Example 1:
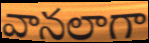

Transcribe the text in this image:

వానలాగా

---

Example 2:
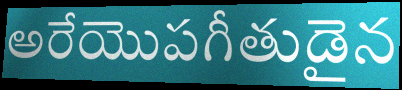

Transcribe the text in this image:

అరేయొపగీతుడైన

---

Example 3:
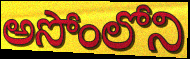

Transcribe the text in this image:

అసోంలోని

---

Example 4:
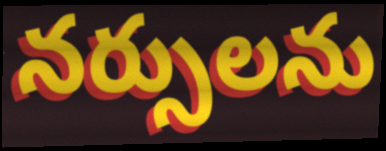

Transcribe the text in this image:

నర్సులను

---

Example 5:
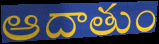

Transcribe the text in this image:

ఆదాతుం